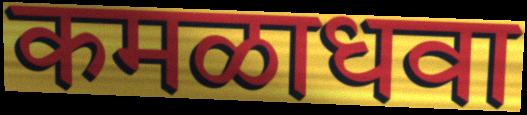
कमळाधवा